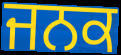
ਜਨਕ